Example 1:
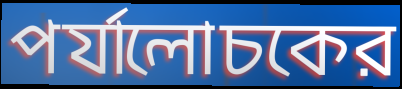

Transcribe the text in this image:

পর্যালোচকের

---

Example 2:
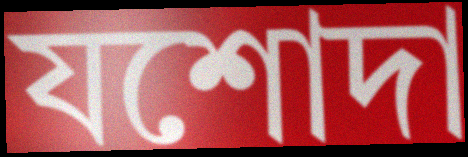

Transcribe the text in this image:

যশোদা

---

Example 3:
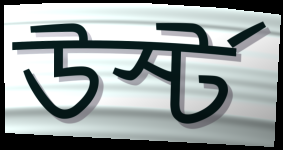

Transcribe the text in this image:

উর্স্ট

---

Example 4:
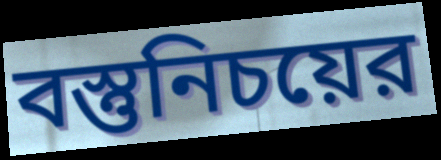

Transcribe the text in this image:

বস্তুনিচয়ের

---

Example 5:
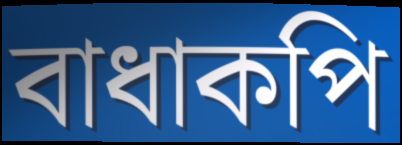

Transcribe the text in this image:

বাধাকপি